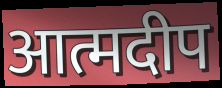
आत्मदीप